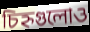
চিহ্নগুলোও